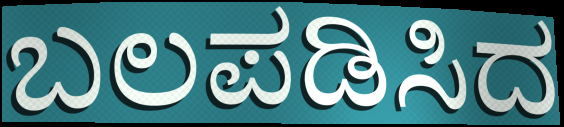
ಬಲಪಡಿಸಿದ